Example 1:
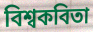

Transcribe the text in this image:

বিশ্বকবিতা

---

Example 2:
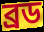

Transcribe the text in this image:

ব্রড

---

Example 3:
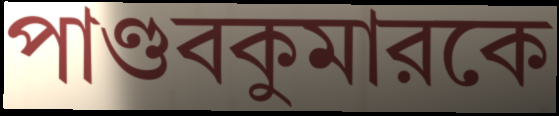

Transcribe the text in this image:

পাণ্ডবকুমারকে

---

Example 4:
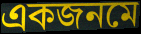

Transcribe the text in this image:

একজনমে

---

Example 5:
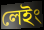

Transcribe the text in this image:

লেইং